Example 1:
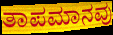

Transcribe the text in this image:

ತಾಪಮಾನವು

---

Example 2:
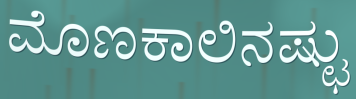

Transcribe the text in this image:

ಮೊಣಕಾಲಿನಷ್ಟು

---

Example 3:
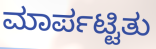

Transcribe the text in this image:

ಮಾರ್ಪಟ್ಟಿತು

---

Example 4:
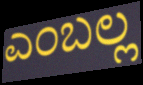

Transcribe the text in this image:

ಎಂಬಲ್ಲ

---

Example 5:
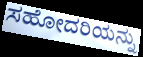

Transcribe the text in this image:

ಸಹೋದರಿಯನ್ನು